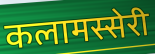
कलामस्सेरी